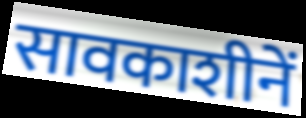
सावकाशीनें